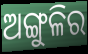
ଅଙ୍ଗୁଳିର